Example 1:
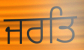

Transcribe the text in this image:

ਜਰਤਿ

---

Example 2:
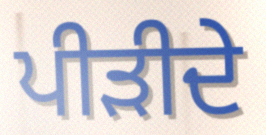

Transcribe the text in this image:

ਪੀੜੀਦੇ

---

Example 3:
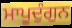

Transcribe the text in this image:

ਮਾਪੂਦੁੰਗੁਨ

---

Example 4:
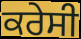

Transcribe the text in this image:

ਕਰੇਸੀ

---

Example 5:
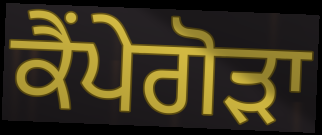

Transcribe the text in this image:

ਕੈਂਪੇਗੋੜਾ